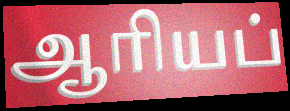
ஆரியப்